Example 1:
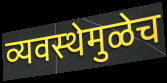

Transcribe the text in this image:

व्यवस्थेमुळेच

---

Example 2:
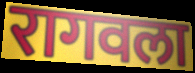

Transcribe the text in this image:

रागवला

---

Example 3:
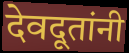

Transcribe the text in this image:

देवदूतांनी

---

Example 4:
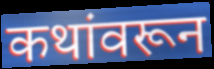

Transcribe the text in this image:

कथांवरून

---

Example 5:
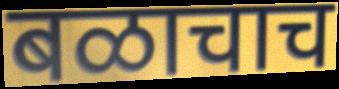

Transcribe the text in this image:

बळाचाच